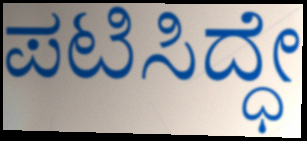
ಪಟಿಸಿದ್ಧೇ